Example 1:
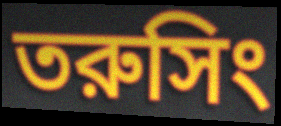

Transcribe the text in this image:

তরুসিং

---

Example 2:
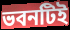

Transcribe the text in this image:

ভবনটিই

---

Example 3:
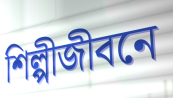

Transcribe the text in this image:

শিল্পীজীবনে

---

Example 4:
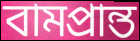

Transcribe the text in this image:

বামপ্রান্ত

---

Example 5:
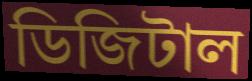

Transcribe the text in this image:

ডিজিটাল